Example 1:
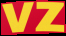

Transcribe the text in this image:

VZ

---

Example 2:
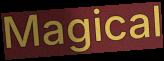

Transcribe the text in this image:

Magical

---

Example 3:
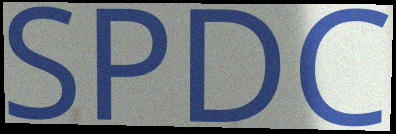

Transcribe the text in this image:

SPDC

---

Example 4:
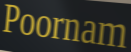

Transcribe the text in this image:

Poornam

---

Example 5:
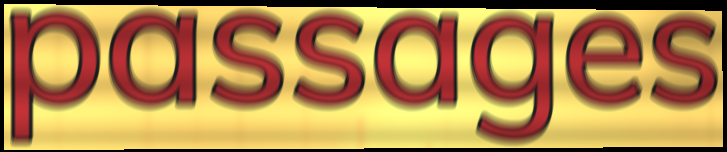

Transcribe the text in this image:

passages